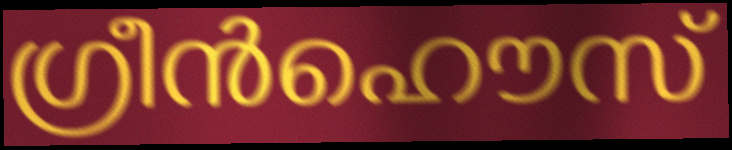
ഗ്രീൻഹൌസ്